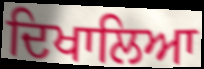
ਦਿਖਾਲਿਆ